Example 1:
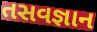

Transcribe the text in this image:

તસવજ્ઞાન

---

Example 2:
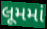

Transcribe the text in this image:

લૂમમાં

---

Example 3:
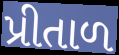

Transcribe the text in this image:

પ્રીતાળ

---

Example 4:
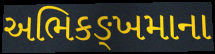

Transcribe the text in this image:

અભિકઙ્ખમાના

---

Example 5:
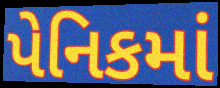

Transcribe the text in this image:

પેનિકમાં